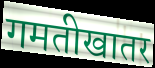
गमतीखातर